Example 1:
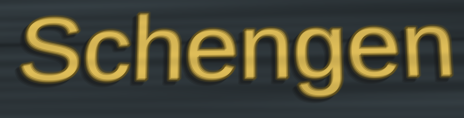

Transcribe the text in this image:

Schengen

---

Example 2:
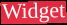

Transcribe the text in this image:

Widget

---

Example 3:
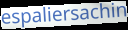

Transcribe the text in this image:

espaliersachin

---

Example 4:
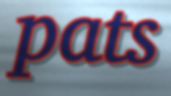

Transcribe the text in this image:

pats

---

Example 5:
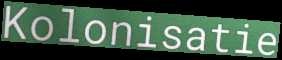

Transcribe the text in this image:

Kolonisatie